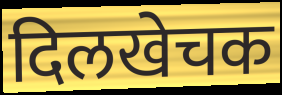
दिलखेचक